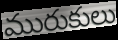
మురుకులు